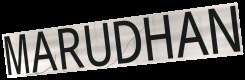
MARUDHAN